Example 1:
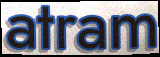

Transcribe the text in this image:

atram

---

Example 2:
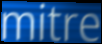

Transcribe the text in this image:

mitre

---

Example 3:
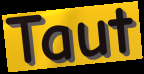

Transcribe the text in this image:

Taut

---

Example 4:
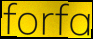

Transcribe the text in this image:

forfa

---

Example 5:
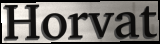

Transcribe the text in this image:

Horvat